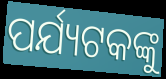
ପର୍ଯ୍ୟଟକଙ୍କୁ